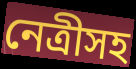
নেত্রীসহ